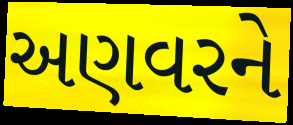
અણવરને